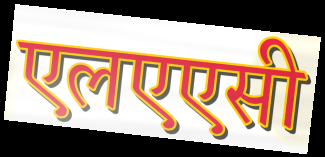
एलएएसी